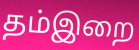
தம்இறை